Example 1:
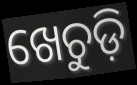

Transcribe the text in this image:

ଖେଚୁଡ଼ି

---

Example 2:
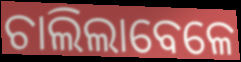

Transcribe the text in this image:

ଚାଲିଲାବେଳେ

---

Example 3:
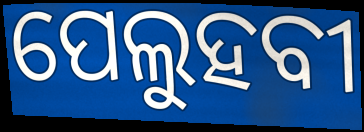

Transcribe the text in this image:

ପେଲୁହବୀ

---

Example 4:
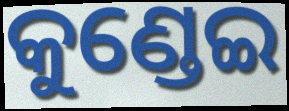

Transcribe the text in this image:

କୁଣ୍ଡେଇ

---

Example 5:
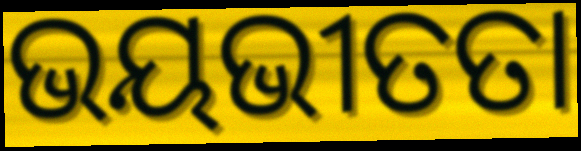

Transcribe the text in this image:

ଭୟଭୀତତା